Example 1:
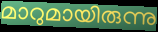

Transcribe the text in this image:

മാറുമായിരുന്നു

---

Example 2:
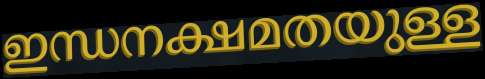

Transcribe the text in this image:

ഇന്ധനക്ഷമതയുള്ള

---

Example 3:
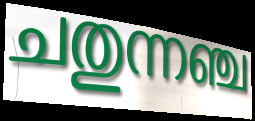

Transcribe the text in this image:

ചതുന്നഞ്ച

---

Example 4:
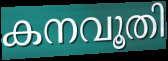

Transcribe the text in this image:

കനവൂതി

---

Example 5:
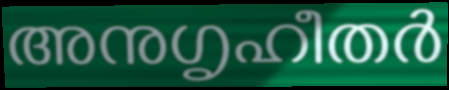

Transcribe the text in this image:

അനുഗൃഹീതർ